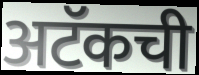
अटॅकची